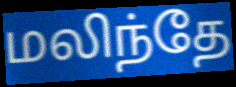
மலிந்தே